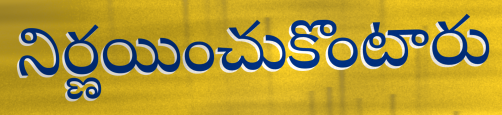
నిర్ణయించుకొంటారు